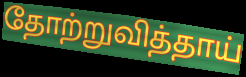
தோற்றுவித்தாய்